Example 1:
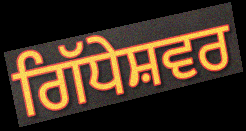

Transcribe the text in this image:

ਗਿੱਧੇਸ਼ਵਰ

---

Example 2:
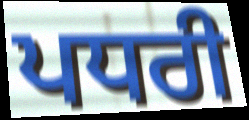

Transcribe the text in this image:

ਪਧਰੀ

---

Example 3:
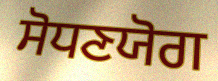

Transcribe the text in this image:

ਸੋਧਣਯੋਗ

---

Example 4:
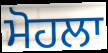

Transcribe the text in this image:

ਮੋਹਲਾ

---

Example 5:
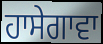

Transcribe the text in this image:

ਹਾਸੇਗਾਵਾ